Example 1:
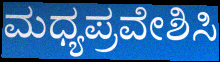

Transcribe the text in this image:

ಮಧ್ಯಪ್ರವೇಶಿಸಿ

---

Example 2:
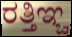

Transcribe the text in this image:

ರತ್ತಿಞ್ಚ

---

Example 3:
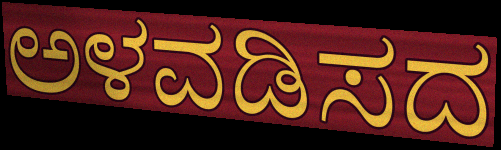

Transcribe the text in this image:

ಅಳವಡಿಸದ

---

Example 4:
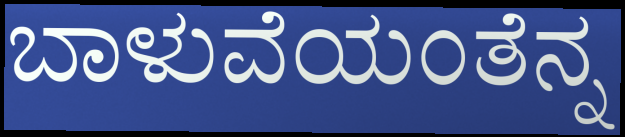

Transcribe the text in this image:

ಬಾಳುವೆಯಂತೆನ್ನ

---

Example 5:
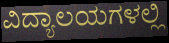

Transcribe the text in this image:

ವಿದ್ಯಾಲಯಗಳಲ್ಲಿ